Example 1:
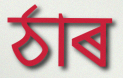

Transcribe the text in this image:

ঠাৰ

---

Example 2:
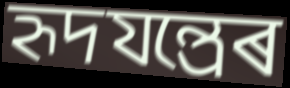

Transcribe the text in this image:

হৃদযন্ত্ৰেৰ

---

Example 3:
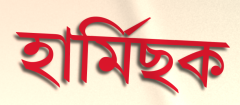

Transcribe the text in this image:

হাৰ্মিছক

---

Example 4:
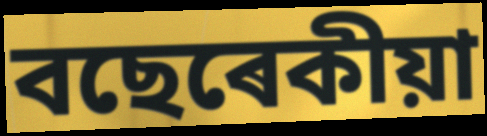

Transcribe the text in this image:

বছেৰেকীয়া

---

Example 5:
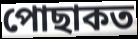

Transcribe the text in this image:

পোছাকত